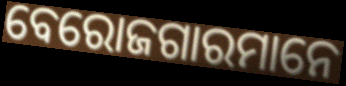
ବେରୋଜଗାରମାନେ